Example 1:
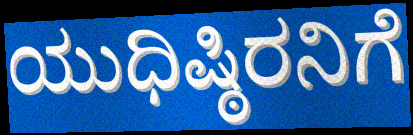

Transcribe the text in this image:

ಯುಧಿಷ್ಠಿರನಿಗೆ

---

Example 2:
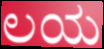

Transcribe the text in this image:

ಲಯ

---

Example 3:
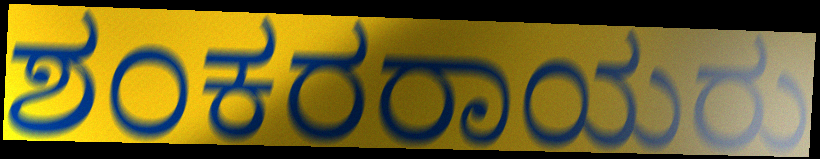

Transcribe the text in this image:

ಶಂಕರರಾಯರು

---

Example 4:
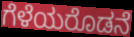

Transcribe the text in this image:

ಗೆಳೆಯರೊಡನೆ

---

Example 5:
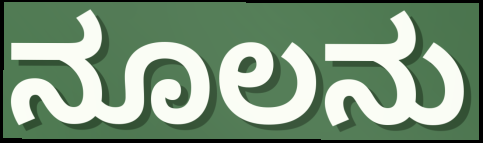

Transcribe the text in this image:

ನೂಲನು